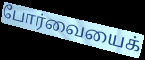
போர்வையைக்